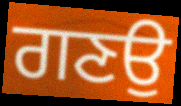
ਗਣਉ